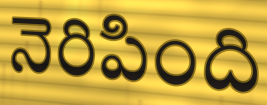
నెరిపింది